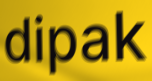
dipak